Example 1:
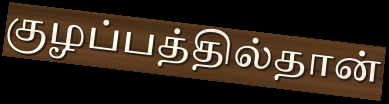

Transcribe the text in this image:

குழப்பத்தில்தான்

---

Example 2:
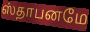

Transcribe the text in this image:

ஸ்தாபனமே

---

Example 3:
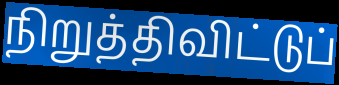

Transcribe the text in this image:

நிறுத்திவிட்டுப்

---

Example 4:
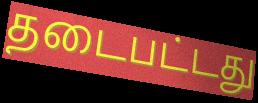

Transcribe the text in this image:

தடைபட்டது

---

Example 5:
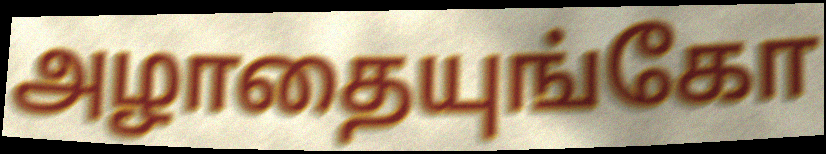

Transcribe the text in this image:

அழாதையுங்கோ